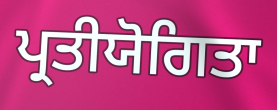
ਪ੍ਰਤੀਯੋਗਿਤਾ